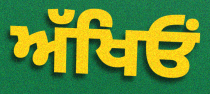
ਅੱਖਿਓਂ